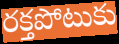
రక్తపోటుకు